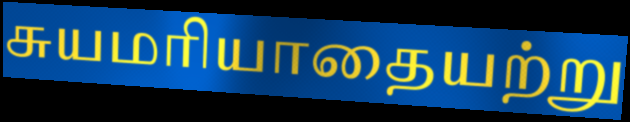
சுயமரியாதையற்று